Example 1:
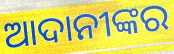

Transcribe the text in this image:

ଆଦାନୀଙ୍କର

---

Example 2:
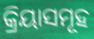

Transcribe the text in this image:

କ୍ରିୟାସମୂହ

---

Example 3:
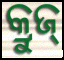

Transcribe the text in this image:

କ୍ରୁଜ୍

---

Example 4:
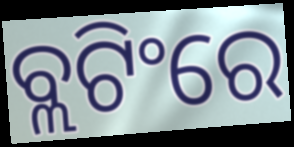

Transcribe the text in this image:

ବ୍ଲଟିଂରେ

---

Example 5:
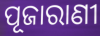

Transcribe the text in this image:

ପୂଜାରାଣୀ